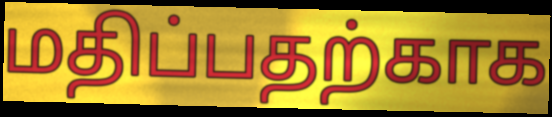
மதிப்பதற்காக